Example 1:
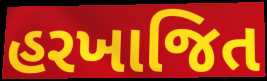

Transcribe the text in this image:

હરખાજિત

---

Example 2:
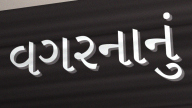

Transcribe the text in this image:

વગરનાનું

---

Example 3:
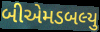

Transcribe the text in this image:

બીએમડબલ્યુ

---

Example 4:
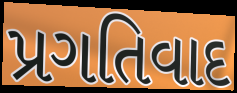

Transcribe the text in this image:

પ્રગતિવાદ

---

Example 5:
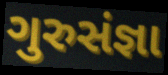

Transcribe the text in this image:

ગુરુસંજ્ઞા